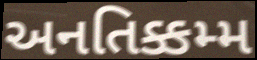
અનતિક્કમ્મ